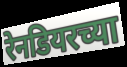
रेनडियरच्या